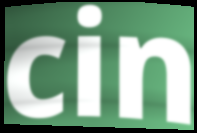
cin